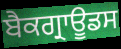
ਬੈਕਗ੍ਰਾਊਡਸ